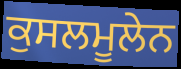
ਕੁਸਲਮੂਲੇਨ